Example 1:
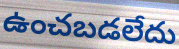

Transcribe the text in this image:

ఉంచబడలేదు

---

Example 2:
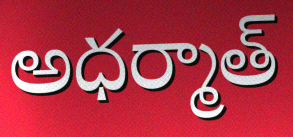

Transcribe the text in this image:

అధర్మాత్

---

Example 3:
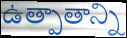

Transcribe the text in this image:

ఉత్పాతాన్ని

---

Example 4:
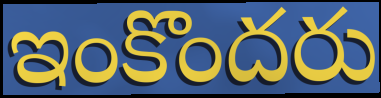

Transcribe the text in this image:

ఇంకొందరు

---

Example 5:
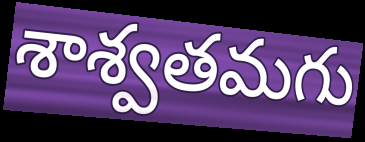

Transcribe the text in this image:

శాశ్వతమగు